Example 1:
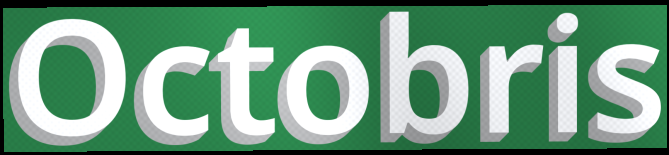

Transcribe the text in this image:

Octobris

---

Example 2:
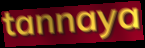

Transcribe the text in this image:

tannaya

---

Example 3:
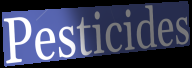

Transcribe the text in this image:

Pesticides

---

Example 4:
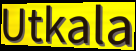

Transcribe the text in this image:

Utkala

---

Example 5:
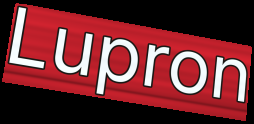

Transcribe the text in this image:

Lupron